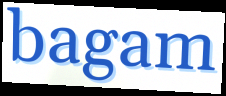
bagam